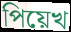
পিয়েখ